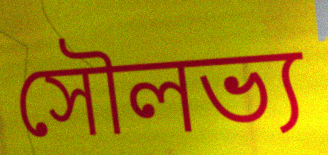
সৌলভ্য